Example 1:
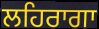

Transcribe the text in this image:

ਲਹਿਰਾਗਾ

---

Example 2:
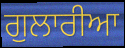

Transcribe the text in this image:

ਗੁਲਾਰੀਆ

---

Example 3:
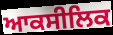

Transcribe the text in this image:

ਆਕਸੀਲਿਕ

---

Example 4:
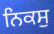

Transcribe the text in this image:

ਨਿਕਸੁ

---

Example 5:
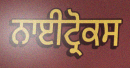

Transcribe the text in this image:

ਨਾਈਟ੍ਰੋਕਸ